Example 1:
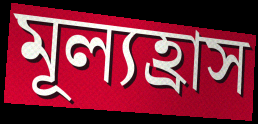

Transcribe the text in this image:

মূল্যহ্রাস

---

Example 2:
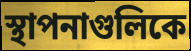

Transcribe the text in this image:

স্থাপনাগুলিকে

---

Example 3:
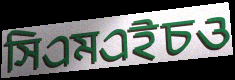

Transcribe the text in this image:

সিএমএইচও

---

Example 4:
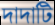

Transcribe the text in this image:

দাদাটি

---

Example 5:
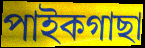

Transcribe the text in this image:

পাইকগাছা